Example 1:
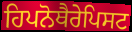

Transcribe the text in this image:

ਹਿਪਨੋਥੈਰੇਪਿਸਟ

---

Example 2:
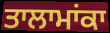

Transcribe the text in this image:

ਤਾਲਾਮਾਂਕਾ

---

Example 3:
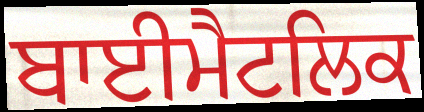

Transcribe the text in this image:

ਬਾਈਮੈਟਲਿਕ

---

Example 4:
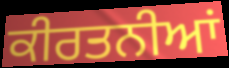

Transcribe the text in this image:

ਕੀਰਤਨੀਆਂ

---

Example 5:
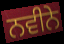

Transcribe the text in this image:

ਨਵੀਨੇ